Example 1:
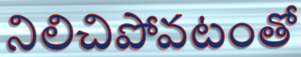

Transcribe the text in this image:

నిలిచిపోవటంతో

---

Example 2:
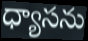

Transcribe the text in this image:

ధ్యాసను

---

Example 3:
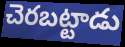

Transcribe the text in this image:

చెరబట్టాడు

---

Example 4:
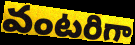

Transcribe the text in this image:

వంటరిగా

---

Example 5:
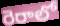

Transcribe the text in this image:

రెరాలో